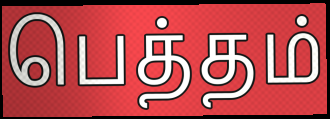
பெத்தம்